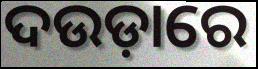
ଦଉଡ଼ାରେ